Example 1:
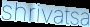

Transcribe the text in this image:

shrivatsa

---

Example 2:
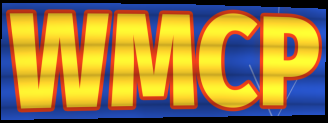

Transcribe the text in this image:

WMCP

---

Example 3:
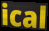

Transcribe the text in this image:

ical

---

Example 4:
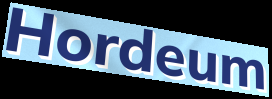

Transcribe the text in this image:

Hordeum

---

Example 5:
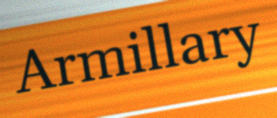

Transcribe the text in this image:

Armillary